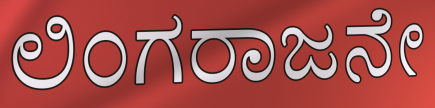
ಲಿಂಗರಾಜನೇ